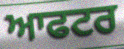
ਆਫਟਰ